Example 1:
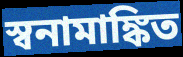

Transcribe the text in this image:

স্বনামাঙ্কিত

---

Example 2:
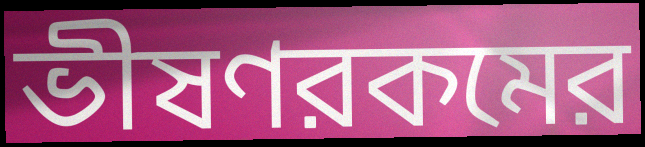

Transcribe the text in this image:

ভীষণরকমের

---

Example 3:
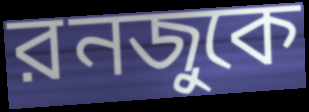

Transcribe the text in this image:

রনজুকে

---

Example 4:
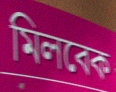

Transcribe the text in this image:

মিলবেক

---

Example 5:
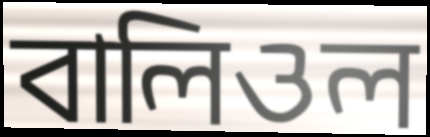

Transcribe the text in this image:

বালিওল